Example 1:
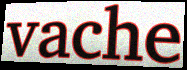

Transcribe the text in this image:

vache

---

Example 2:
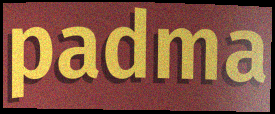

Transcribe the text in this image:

padma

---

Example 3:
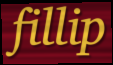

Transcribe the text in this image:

fillip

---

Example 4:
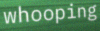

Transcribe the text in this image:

whooping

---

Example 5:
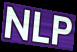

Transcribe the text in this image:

NLP